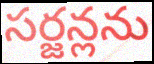
సర్జన్లను